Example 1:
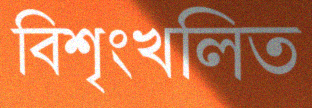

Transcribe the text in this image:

বিশৃংখলিত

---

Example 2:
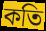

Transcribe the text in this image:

কতি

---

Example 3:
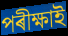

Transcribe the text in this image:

পৰীক্ষাই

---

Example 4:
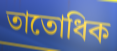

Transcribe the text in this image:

তাতোধিক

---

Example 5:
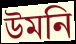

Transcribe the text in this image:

উমনি